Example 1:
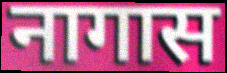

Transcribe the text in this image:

नागास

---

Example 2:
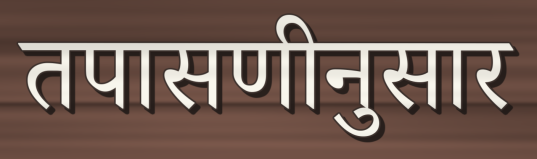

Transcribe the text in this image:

तपासणीनुसार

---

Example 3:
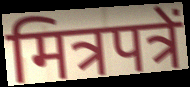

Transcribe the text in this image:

मित्रपत्रें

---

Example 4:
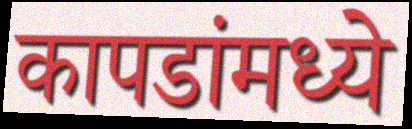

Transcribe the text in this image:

कापडांमध्ये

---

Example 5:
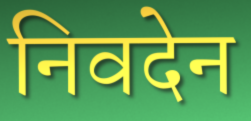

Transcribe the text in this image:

निवदेन